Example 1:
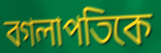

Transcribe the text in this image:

বগলাপতিকে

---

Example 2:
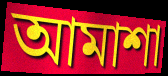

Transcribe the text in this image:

আমাশা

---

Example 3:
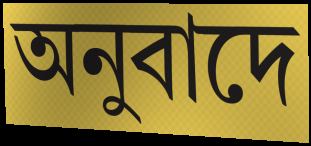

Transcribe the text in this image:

অনুবাদে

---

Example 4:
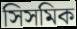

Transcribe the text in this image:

সিসমিক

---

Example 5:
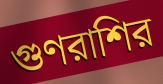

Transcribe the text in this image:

গুণরাশির